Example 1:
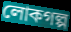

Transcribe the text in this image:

লোকগল্প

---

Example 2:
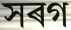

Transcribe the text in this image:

সৰগ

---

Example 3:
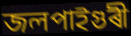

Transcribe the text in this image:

জলপাইগুৰী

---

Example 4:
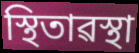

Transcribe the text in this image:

স্থিতাৱস্থা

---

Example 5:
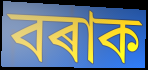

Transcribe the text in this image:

বৰাক